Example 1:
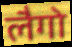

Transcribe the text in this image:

लैगो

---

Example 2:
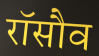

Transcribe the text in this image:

रॉसौव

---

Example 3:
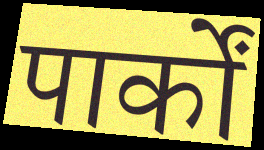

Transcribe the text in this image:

पार्कों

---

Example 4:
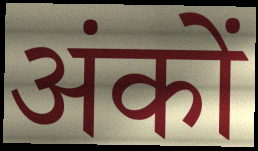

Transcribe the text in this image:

अंकों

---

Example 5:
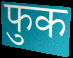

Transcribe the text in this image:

फुक